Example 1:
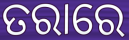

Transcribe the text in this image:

ତରାରେ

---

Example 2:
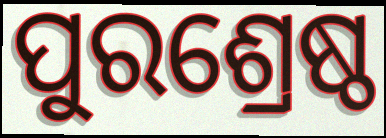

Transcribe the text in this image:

ପୁରଶ୍ରେଷ୍ଠ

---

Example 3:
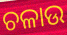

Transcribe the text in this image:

ଚଳାଉ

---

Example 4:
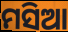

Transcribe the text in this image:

ମସିଆ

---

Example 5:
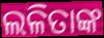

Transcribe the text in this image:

ଲଳିତାଙ୍କ